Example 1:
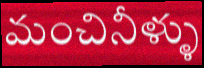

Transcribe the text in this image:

మంచినీళ్ళు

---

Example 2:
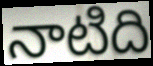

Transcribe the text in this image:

నాటిది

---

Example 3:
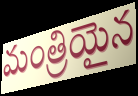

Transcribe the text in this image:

మంత్రియైన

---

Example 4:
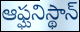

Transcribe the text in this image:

ఆఫ్ఘనిస్థాన్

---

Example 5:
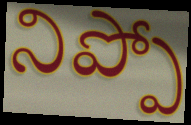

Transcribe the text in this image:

నిప్పో